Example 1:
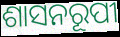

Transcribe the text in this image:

ଶାସନରୂପୀ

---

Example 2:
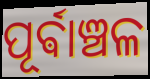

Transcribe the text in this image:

ପୂର୍ଵାଞ୍ଚଳ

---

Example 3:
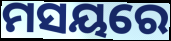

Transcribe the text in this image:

ମସୟରେ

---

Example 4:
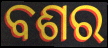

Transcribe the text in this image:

ବଶର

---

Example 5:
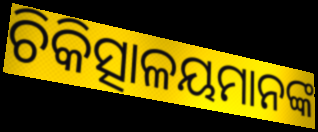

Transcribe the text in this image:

ଚିକିତ୍ସାଳୟମାନଙ୍କ